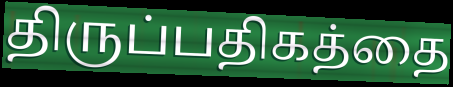
திருப்பதிகத்தை